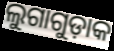
ଲୁଗାଗୁଡ଼ାକ